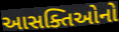
આસક્તિઓનો